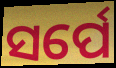
ସର୍ପେ